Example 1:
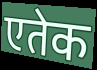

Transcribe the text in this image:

एतेक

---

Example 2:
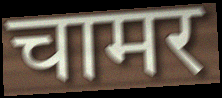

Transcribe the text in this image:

चामर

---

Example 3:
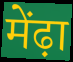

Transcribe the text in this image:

मेंढ़ा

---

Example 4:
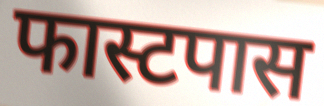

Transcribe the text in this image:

फास्टपास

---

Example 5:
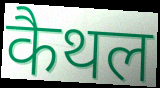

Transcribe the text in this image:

कैथल